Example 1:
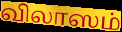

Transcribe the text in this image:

விலாஸம்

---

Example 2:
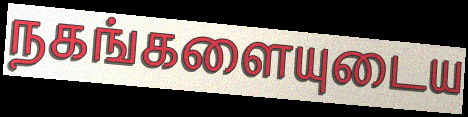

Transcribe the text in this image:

நகங்களையுடைய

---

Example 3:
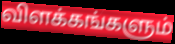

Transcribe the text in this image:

விளக்கங்களும்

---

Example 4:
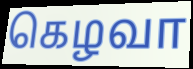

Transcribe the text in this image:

கெழவா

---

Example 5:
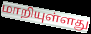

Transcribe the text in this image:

மாறியுள்ளது